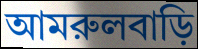
আমরুলবাড়ি